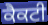
ਕੈਕਟੀ